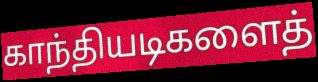
காந்தியடிகளைத்